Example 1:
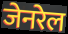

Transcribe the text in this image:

जेनरेल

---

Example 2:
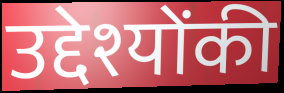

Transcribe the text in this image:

उद्देश्योंकी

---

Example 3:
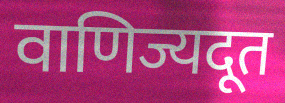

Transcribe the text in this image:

वाणिज्यदूत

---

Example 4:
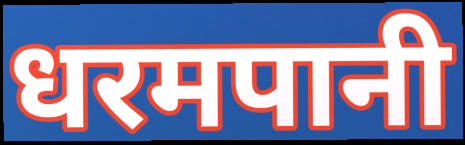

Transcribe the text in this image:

धरमपानी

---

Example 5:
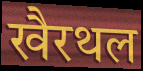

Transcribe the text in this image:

खैरथल